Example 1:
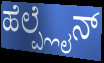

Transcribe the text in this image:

ಹೆಲ್ಪ್ಲೈನ್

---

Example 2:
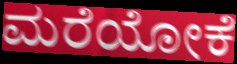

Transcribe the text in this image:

ಮರೆಯೋಕೆ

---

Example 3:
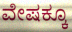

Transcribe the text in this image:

ವೇಷಕ್ಕೂ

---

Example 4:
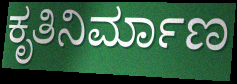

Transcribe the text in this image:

ಕೃತಿನಿರ್ಮಾಣ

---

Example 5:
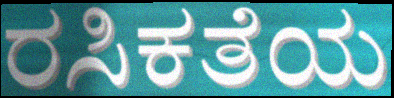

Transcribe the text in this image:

ರಸಿಕತೆಯ